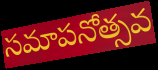
సమాపనోత్సవ